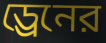
ড্রেনের